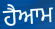
ਹੈਆਮ